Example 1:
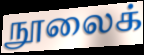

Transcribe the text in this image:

நூலைக்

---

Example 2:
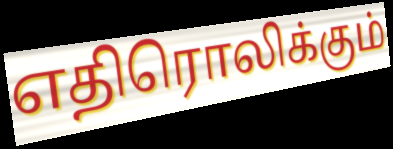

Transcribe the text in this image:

எதிரொலிக்கும்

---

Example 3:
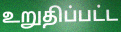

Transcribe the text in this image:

உறுதிப்பட்ட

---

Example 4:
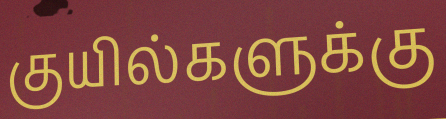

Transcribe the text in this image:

குயில்களுக்கு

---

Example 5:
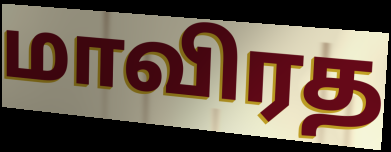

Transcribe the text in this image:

மாவிரத